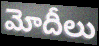
మోదీలు